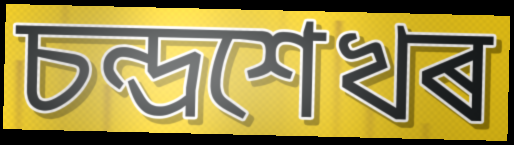
চন্দ্ৰশেখৰ